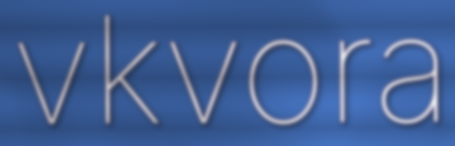
vkvora